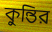
কুন্তির